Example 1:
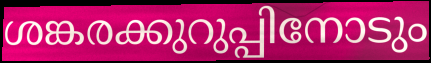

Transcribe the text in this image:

ശങ്കരക്കുറുപ്പിനോടും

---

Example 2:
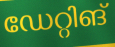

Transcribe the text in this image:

ഡേറ്റിങ്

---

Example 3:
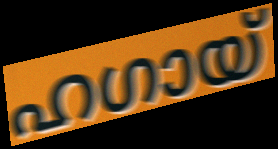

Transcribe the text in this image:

ഹഗായ്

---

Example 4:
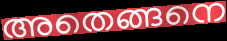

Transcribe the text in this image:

അതെങ്ങനെ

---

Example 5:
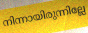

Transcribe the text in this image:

നിന്നായിരുന്നില്ലേ